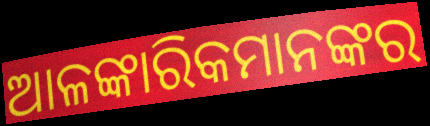
ଆଳଙ୍କାରିକମାନଙ୍କର